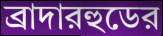
ব্রাদারহুডের